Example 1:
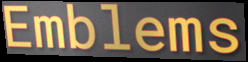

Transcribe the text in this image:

Emblems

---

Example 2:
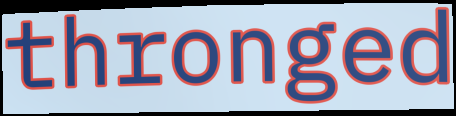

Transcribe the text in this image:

thronged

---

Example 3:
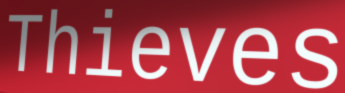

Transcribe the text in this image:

Thieves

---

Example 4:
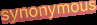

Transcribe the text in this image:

synonymous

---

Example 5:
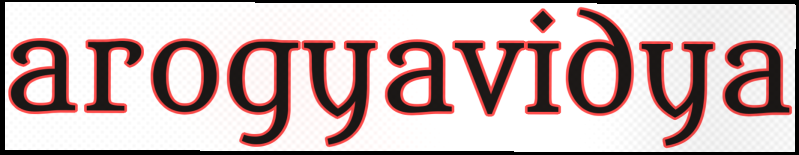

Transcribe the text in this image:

arogyavidya